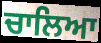
ਚਾਲਿਆ